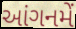
આંગનમેં